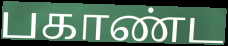
பகாண்ட